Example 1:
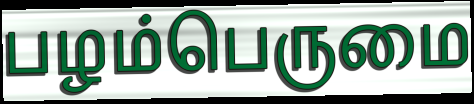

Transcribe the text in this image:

பழம்பெருமை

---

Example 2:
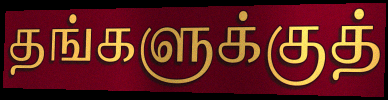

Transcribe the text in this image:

தங்களுக்குத்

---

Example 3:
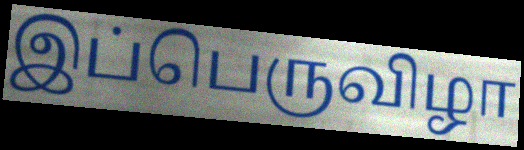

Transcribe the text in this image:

இப்பெருவிழா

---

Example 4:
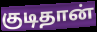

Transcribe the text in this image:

குடிதான்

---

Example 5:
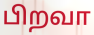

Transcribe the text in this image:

பிறவா